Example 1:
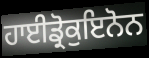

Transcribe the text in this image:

ਹਾਈਡ੍ਰੋਕੁਇਨੋਨ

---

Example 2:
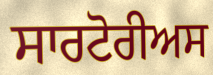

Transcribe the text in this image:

ਸਾਰਟੋਰੀਅਸ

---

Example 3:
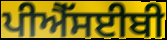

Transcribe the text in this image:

ਪੀਐੱਸਈਬੀ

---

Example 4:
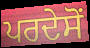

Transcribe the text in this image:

ਪਰਦੇਸੋਂ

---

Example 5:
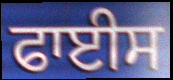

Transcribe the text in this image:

ਫਾਈਸ